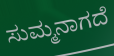
ಸುಮ್ಮನಾಗದೆ